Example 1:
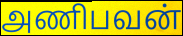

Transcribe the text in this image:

அணிபவன்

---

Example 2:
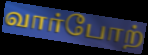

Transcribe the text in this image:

வார்போற்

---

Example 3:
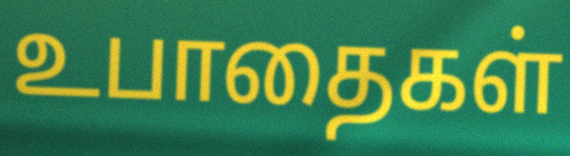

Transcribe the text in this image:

உபாதைகள்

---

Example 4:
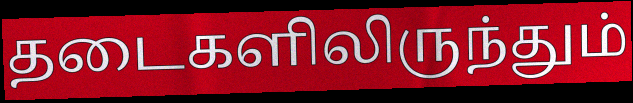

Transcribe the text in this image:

தடைகளிலிருந்தும்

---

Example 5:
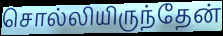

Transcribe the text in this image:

சொல்லியிருந்தேன்